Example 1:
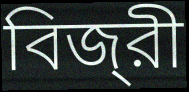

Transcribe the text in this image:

বিজ্‌রী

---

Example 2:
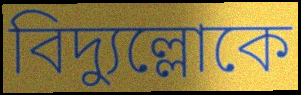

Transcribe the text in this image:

বিদ্যুল্লোকে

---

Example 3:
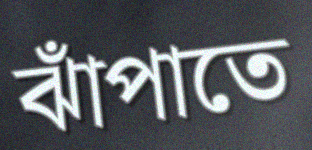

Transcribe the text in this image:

ঝাঁপাতে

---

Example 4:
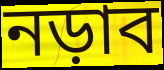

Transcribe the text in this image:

নড়াব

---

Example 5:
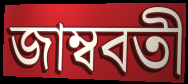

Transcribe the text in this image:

জাম্ববতী